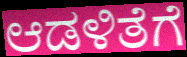
ಆಡಳಿತೆಗೆ